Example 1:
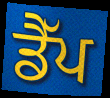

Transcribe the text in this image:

ਡੈੱਪ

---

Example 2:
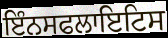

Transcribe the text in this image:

ਇੰਨਸਫਲਾਇਟਿਸ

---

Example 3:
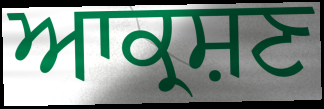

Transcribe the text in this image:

ਆਕ੍ਰਸ਼ਣ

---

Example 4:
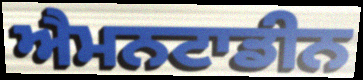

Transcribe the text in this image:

ਐਮਨਟਾਡੀਨ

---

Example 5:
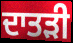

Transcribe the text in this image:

ਦਾਤੜੀ